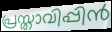
പ്രസ്താവിപ്പിൻ